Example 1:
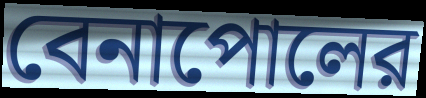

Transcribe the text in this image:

বেনাপোলের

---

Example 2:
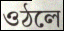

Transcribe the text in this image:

ওঠলে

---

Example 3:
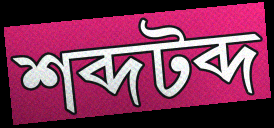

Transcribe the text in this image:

শব্দটব্দ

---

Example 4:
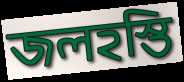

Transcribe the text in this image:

জলহস্তি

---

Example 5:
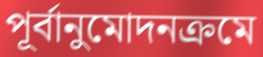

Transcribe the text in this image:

পূর্বানুমোদনক্রমে